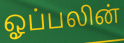
ஓப்பலின்